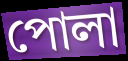
পোলা